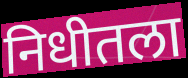
निधीतला